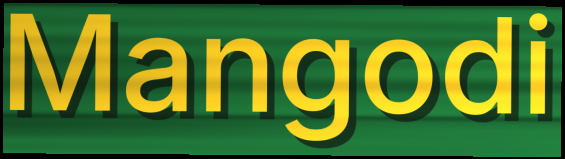
Mangodi